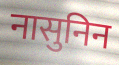
नासुनिन